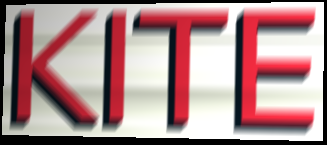
KITE